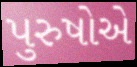
પુરુષોએ